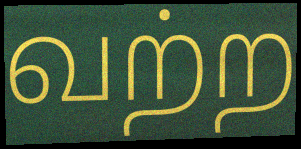
வற்ற